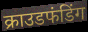
क्राउडफंडिंग